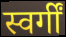
स्वर्गीं